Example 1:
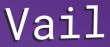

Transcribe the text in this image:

Vail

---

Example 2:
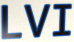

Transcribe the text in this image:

LVI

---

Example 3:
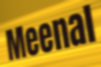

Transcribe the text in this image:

Meenal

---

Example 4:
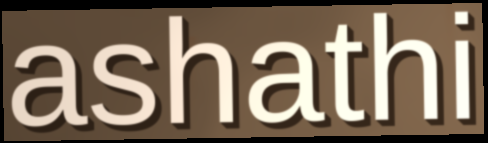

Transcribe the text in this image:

ashathi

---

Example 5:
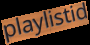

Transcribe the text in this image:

playlistid